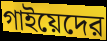
গাইয়েদের